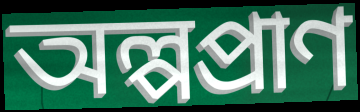
অল্পপ্রাণ